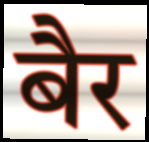
बैर